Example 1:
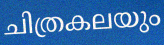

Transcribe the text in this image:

ചിത്രകലയും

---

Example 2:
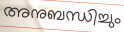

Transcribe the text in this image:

അനുബന്ധിച്ചും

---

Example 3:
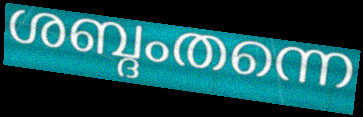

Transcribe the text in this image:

ശബ്ദംതന്നെ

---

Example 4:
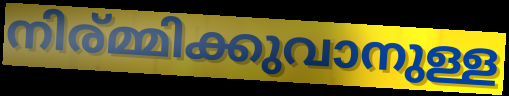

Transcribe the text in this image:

നിര്മ്മിക്കുവാനുള്ള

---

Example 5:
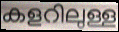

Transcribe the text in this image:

കളറിലുള്ള